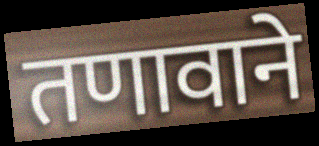
तणावाने